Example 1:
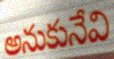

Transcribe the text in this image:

అనుకునేవి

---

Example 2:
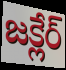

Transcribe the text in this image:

జక్లేర్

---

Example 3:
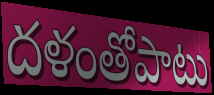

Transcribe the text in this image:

దళంతోపాటు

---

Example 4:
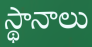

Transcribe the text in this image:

స్థానాలు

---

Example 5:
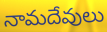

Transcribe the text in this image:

నామదేవులు